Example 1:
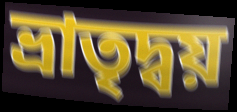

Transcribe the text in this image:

ভ্রাতৃদ্বয়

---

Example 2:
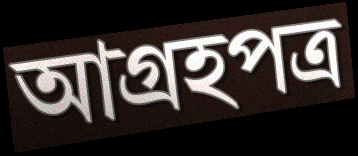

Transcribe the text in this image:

আগ্রহপত্র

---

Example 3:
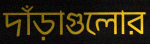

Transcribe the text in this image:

দাঁড়াগুলোর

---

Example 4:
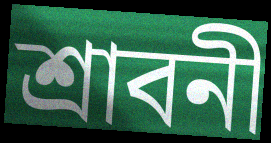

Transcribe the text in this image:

শ্রাবনী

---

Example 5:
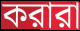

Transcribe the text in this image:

করারা